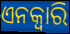
ଏନକ୍ଵାରି